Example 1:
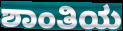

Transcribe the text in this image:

ಶಾಂತಿಯ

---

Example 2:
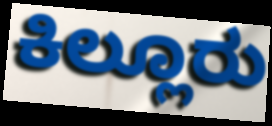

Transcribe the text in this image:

ಕಿಲ್ಲೂರು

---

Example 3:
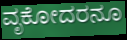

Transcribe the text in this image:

ವೃಕೋದರನೂ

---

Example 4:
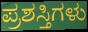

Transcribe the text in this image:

ಪ್ರಶಸ್ತಿಗಳು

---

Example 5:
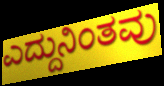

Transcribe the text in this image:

ಎದ್ದುನಿಂತವು